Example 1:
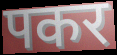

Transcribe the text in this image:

पकर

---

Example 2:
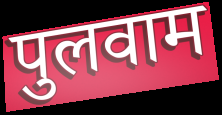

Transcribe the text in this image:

पुलवाम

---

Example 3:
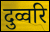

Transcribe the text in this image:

दुव्वरि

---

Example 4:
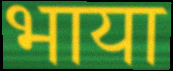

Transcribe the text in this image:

भाया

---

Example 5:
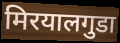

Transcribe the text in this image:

मिरयालगुडा